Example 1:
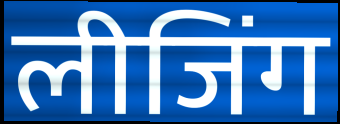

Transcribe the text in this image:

लीजिंग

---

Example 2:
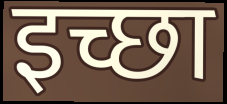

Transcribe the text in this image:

इच्छा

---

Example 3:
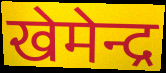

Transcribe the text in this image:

खेमेन्द्र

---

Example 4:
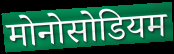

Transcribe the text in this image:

मोनोसोडियम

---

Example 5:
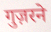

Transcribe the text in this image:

गुज़रने